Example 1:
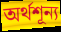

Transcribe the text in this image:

অর্থশূন্য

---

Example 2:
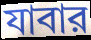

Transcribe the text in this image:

যাবার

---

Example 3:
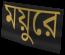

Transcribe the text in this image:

ময়ুরে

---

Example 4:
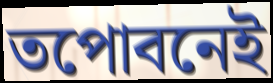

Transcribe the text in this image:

তপোবনেই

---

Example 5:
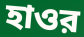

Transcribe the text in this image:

হাওর